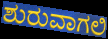
ಶುರುವಾಗಲಿ